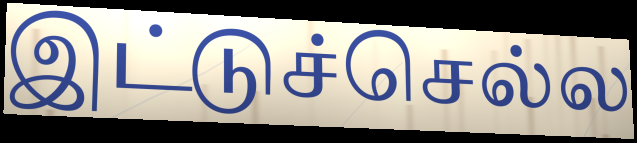
இட்டுச்செல்ல